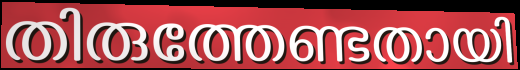
തിരുത്തേണ്ടതായി